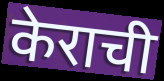
केराची